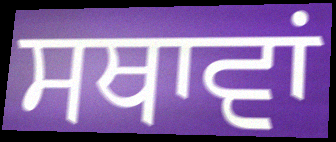
ਸਥਾਵਾਂ